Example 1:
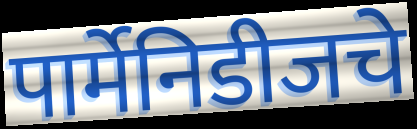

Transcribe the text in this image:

पार्मेनिडीजचे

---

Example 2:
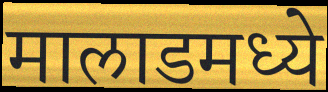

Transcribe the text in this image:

मालाडमध्ये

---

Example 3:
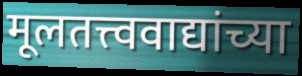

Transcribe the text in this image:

मूलतत्त्ववाद्यांच्या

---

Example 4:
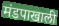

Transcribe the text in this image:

मंडपाखाली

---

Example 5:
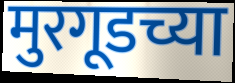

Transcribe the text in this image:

मुरगूडच्या